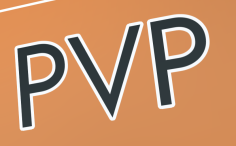
PVP